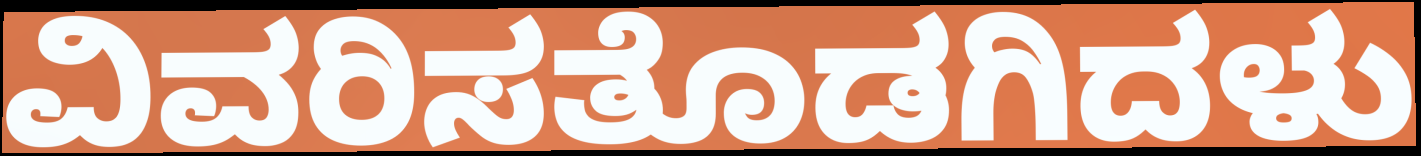
ವಿವರಿಸತೊಡಗಿದಳು